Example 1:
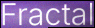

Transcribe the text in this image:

Fractal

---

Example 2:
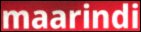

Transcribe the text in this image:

maarindi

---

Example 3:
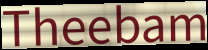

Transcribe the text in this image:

Theebam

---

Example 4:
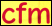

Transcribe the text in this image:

cfm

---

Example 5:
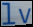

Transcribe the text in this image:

lv